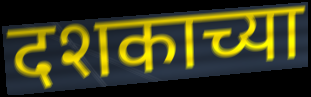
दशकाच्या